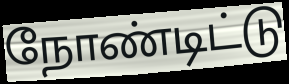
நோண்டிட்டு